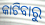
କାଟିବାରୁ